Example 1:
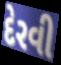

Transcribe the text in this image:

દેરવી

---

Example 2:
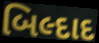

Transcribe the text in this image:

બિલ્દાદ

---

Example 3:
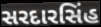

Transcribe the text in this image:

સરદારસિંહ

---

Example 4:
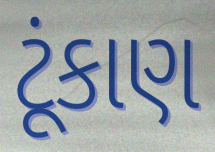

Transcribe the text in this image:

ટૂંકાણ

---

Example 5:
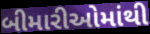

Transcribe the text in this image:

બીમારીઓમાંથી